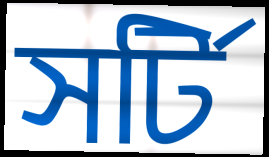
সর্টি